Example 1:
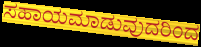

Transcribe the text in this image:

ಸಹಾಯಮಾಡುವುದರಿಂದ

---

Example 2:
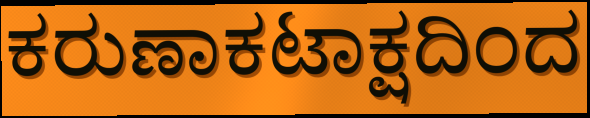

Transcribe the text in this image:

ಕರುಣಾಕಟಾಕ್ಷದಿಂದ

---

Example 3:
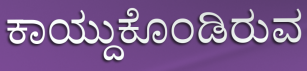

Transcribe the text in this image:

ಕಾಯ್ದುಕೊಂಡಿರುವ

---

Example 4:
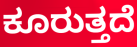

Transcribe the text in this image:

ಕೂರುತ್ತದೆ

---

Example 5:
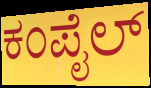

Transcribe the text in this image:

ಕಂಪೈಲ್